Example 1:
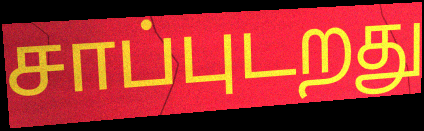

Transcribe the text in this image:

சாப்புடறது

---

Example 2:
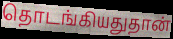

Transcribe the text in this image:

தொடங்கியதுதான்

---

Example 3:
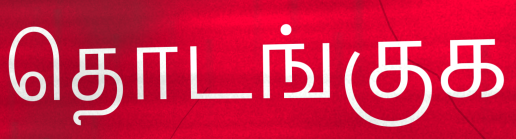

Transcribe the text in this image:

தொடங்குக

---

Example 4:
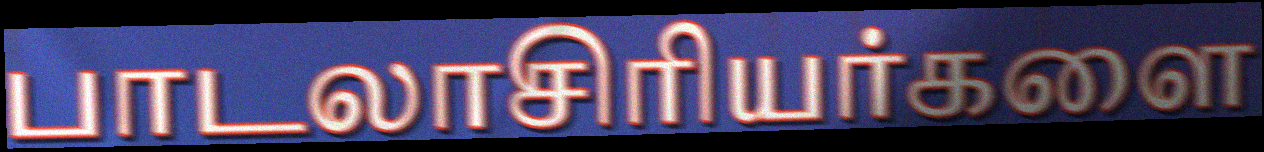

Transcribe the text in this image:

பாடலாசிரியர்களை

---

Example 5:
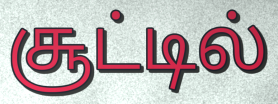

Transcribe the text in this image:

சூட்டில்